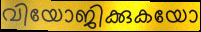
വിയോജിക്കുകയോ